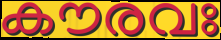
കൗരവഃ